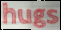
hugs